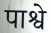
पाश्वे